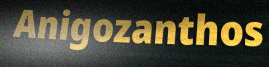
Anigozanthos